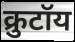
क्रुटॉय